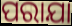
ପରାଯା